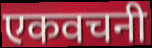
एकवचनी